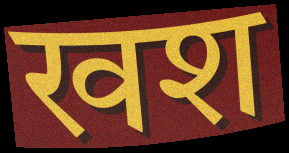
खश